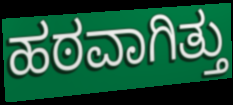
ಹಠವಾಗಿತ್ತು